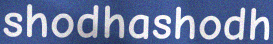
shodhashodh